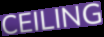
CEILING